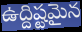
ఉద్దిష్టమైన